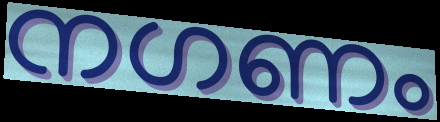
നഗണം